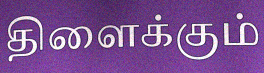
திளைக்கும்